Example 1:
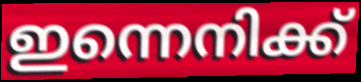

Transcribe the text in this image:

ഇന്നെനിക്ക്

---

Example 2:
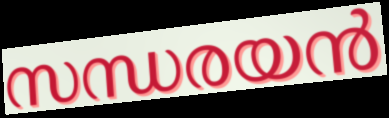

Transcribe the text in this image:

സന്ധരയൻ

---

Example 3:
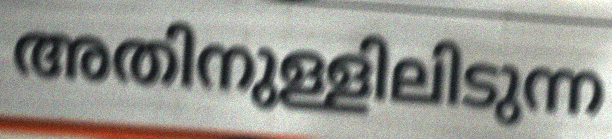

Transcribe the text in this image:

അതിനുള്ളിലിടുന്ന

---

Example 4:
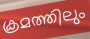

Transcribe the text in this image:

ക്രമത്തിലും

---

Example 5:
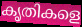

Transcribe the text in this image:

കൃതികളെ